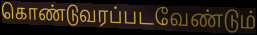
கொண்டுவரப்படவேண்டும்